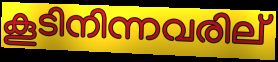
കൂടിനിന്നവരില്